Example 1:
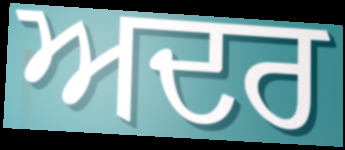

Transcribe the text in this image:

ਅਦਰ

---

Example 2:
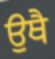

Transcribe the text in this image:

ਉਥੈ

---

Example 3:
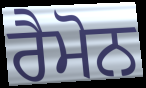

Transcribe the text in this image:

ਰੈਮੋਨ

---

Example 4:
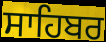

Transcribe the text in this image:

ਸਾਹਿਬਰ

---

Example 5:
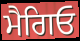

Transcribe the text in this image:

ਮੈਗਿਓ